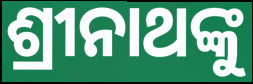
ଶ୍ରୀନାଥଙ୍କୁ